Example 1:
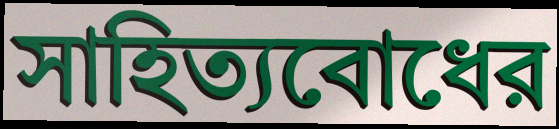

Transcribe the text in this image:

সাহিত্যবোধের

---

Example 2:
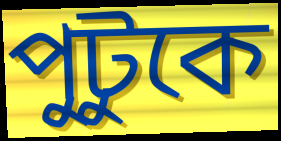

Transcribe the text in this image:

পুটুকে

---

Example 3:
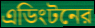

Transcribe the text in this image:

এডিংটনের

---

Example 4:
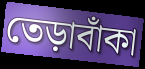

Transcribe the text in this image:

তেড়াবাঁকা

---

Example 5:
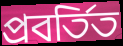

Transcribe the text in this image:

প্রবর্তিত